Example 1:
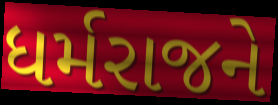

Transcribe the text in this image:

ધર્મરાજને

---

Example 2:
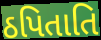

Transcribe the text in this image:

ઠપિતાતિ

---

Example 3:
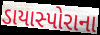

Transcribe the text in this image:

ડાયાસ્પોરાના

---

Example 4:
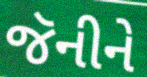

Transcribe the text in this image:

જૅનીને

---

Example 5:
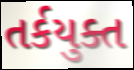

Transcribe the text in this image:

તર્કયુક્ત